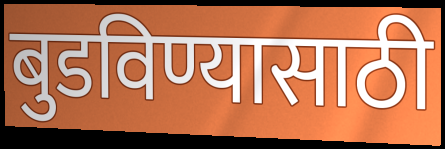
बुडविण्यासाठी